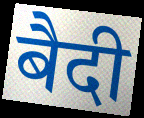
बैदी